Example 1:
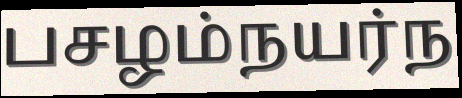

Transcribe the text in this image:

பசழம்நயர்ந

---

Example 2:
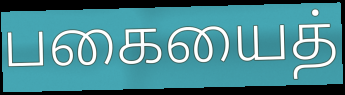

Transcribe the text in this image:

பகையைத்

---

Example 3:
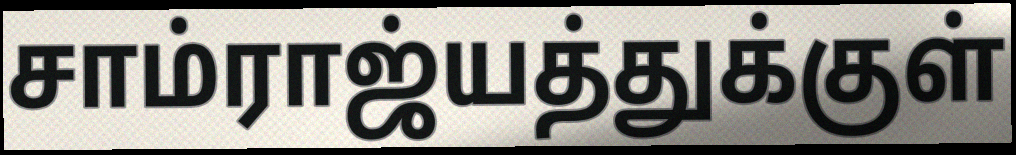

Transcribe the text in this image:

சாம்ராஜ்யத்துக்குள்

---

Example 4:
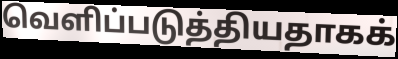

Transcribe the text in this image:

வெளிப்படுத்தியதாகக்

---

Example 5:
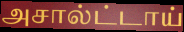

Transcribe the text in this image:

அசால்ட்டாய்